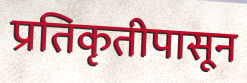
प्रतिकृतीपासून